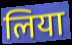
लिया